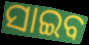
ସାଇବ